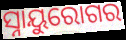
ସ୍ନାୟୁରୋଗର